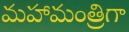
మహామంత్రిగా